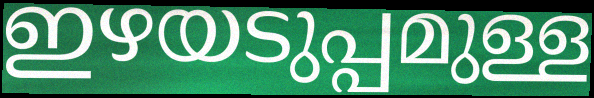
ഇഴയടുപ്പമുള്ള